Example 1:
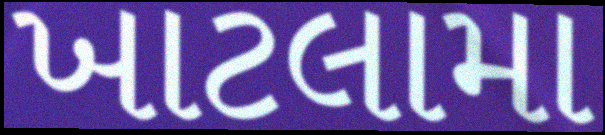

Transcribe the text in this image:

ખાટલામા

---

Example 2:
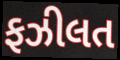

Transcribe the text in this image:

ફઝીલત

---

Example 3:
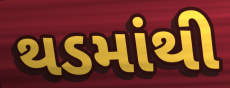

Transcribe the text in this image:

થડમાંથી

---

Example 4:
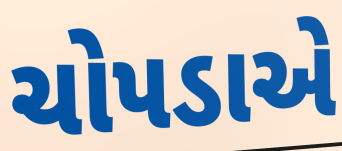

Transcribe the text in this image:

ચોપડાએ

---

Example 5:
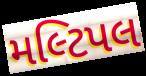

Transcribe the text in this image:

મલ્ટિપલ